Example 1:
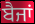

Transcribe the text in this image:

ਬੈਜਾਂ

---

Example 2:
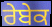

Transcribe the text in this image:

ਰੇਬੇਕ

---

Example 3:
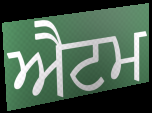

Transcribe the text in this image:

ਐਟਮ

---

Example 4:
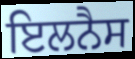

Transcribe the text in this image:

ਇਲਨੈਸ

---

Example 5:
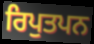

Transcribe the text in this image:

ਰਿਪੁਤਪਨ